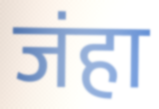
जंहा